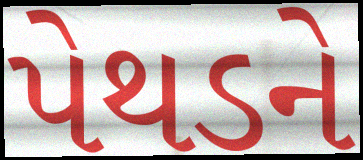
પેથડને